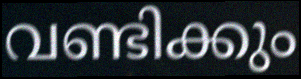
വണ്ടിക്കും